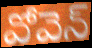
వోవెన్